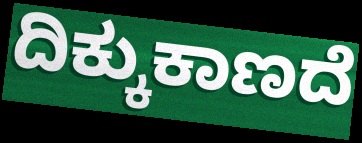
ದಿಕ್ಕುಕಾಣದೆ